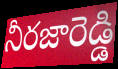
నీరజారెడ్డి